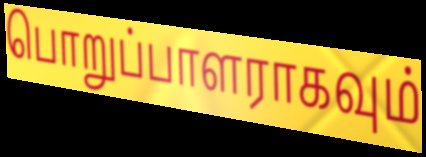
பொறுப்பாளராகவும்